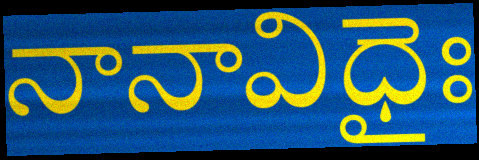
నానావిధైః